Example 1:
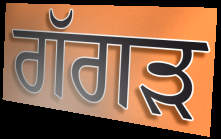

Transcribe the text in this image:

ਗੱਗੜ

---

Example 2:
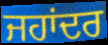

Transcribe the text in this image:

ਜਹਾਂਦਰ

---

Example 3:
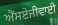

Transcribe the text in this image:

ਐੱਸਏਜੀਵਾਈ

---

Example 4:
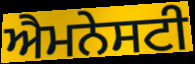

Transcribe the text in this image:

ਐਮਨੇਸਟੀ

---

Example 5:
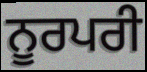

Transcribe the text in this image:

ਨੂਰਪਰੀ